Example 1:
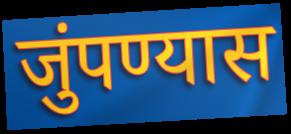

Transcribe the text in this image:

जुंपण्यास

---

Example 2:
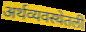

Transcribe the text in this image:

अर्थव्यवस्थेतली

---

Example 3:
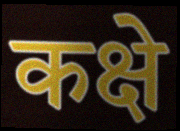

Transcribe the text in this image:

कक्षे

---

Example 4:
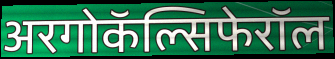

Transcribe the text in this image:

अरगोकॅल्सिफेरॉल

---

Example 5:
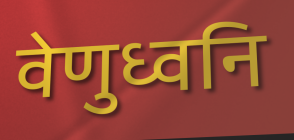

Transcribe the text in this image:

वेणुध्वनि